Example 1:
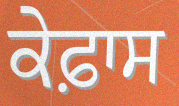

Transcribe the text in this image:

ਕੇਫ਼ਾਸ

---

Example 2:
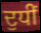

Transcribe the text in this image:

ਦੁਧੀਂ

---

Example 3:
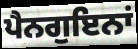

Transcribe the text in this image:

ਪੈਨਗੁਇਨਾਂ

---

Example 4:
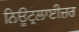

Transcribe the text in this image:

ਨਿਊਟ੍ਰਲਾਈਜ਼ਰ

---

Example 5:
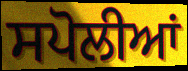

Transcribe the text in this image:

ਸਪੋਲੀਆਂ